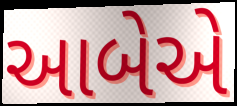
આબેએ